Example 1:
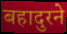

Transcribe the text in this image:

बहादुरने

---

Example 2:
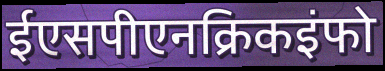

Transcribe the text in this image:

ईएसपीएनक्रिकइंफो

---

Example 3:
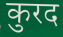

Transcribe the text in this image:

कुरद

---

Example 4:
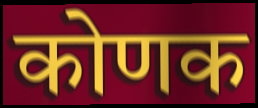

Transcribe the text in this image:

कोणक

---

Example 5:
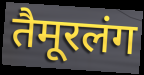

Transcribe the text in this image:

तैमूरलंग